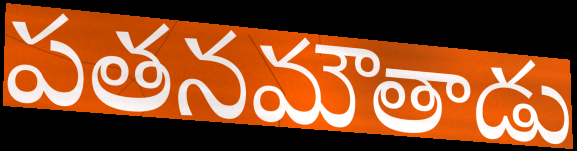
పతనమౌతాడు